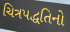
ચિત્રપદ્ધતિનો